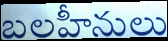
బలహీనులు